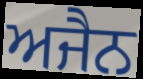
ਅਜੈਨ